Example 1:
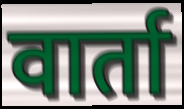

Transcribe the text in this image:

वार्ता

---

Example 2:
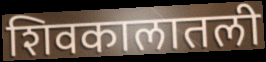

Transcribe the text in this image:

शिवकालातली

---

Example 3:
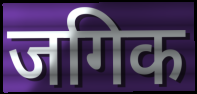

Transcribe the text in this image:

जगिक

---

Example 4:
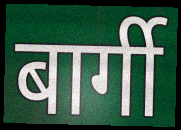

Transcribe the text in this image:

बार्गी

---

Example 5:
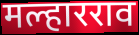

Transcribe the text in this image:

मल्हारराव